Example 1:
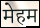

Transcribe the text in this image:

मेहम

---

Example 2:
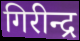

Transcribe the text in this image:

गिरीन्द्र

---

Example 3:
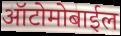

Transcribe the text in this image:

ऑटोमोबाईल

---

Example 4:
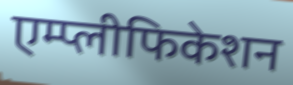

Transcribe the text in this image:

एम्प्लीफिकेशन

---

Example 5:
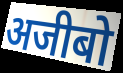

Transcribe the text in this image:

अजीबो